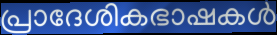
പ്രാദേശികഭാഷകൾ